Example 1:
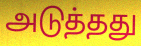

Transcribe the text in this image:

அடுத்தது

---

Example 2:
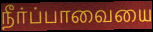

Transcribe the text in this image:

நீர்ப்பாவையை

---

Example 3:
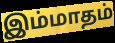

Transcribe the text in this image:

இம்மாதம்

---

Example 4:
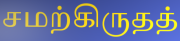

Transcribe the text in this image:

சமற்கிருதத்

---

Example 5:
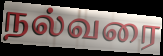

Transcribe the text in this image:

நல்வரை